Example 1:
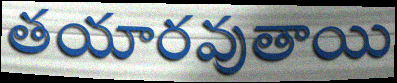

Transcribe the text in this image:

తయారవుతాయి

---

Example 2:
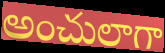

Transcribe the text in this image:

అంచులాగా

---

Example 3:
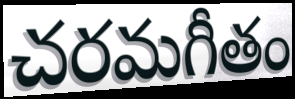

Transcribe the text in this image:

చరమగీతం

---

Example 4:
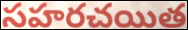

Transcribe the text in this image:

సహరచయిత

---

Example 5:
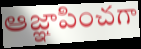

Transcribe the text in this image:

ఆజ్ఞాపించగా